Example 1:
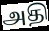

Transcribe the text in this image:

அதி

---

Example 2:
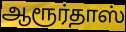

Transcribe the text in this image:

ஆரூர்தாஸ்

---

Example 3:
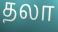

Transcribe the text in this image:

தலா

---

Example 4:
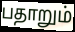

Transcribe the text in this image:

பதாறும்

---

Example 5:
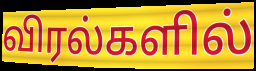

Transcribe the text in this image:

விரல்களில்